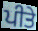
ਪੀਤੇ